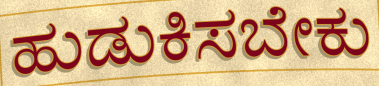
ಹುಡುಕಿಸಬೇಕು